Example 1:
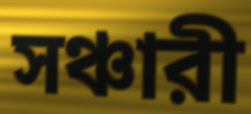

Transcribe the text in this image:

সঞ্চারী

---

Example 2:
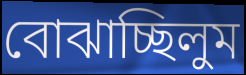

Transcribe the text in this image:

বোঝাচ্ছিলুম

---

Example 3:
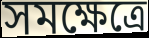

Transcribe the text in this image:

সমক্ষেত্রে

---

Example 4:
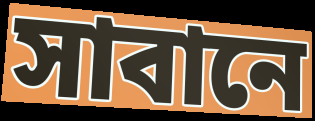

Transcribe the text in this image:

সাবানে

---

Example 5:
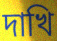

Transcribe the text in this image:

দাখি